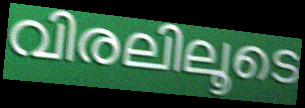
വിരലിലൂടെ